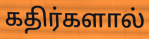
கதிர்களால்